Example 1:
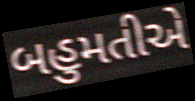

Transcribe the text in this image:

બહુમતીએ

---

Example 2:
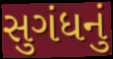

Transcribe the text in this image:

સુગંધનું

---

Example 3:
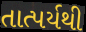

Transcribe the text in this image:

તાત્પર્યથી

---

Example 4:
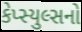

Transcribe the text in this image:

કેપ્સ્યુલ્સનો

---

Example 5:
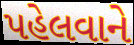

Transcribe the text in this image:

પહેલવાને